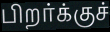
பிறர்க்குச்